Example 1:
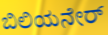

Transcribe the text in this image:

ಬಿಲಿಯನೇರ್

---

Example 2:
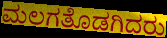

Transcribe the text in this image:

ಮಲಗತೊಡಗಿದರು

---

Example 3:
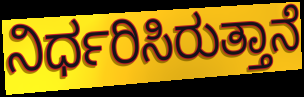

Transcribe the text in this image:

ನಿರ್ಧರಿಸಿರುತ್ತಾನೆ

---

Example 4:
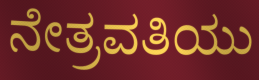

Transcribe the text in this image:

ನೇತ್ರವತಿಯು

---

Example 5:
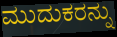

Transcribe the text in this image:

ಮುದುಕರನ್ನು